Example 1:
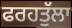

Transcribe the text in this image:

ਫਰਹਤੁੱਲਾ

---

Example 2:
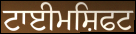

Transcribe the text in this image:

ਟਾਈਮਸ਼ਿਫਟ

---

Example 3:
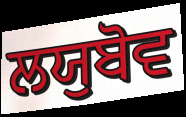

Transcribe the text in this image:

ਲਯੁਬੋਵ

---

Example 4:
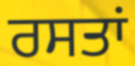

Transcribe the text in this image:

ਰਸਤਾਂ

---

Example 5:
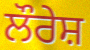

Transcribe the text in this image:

ਲੌਰੇਸ਼